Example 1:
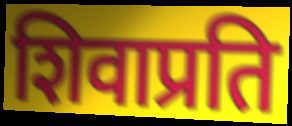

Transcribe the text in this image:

शिवाप्रति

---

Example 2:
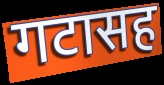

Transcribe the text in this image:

गटासह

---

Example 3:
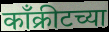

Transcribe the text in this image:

काँक्रीटच्या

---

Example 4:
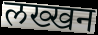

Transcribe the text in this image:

लख्खन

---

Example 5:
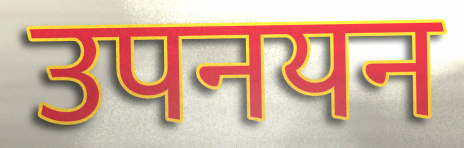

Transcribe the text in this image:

उपनयन